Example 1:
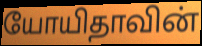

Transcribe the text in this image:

யோயிதாவின்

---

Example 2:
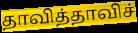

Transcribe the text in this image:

தாவித்தாவிச்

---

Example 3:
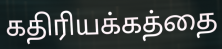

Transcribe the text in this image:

கதிரியக்கத்தை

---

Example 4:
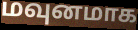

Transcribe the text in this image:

மவுனமாக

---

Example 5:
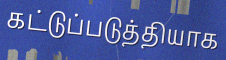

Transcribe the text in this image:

கட்டுப்படுத்தியாக